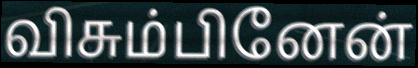
விசும்பினேன்